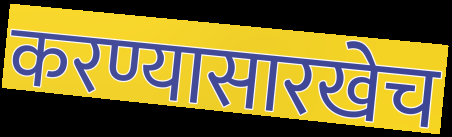
करण्यासारखेच